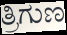
ತ್ರಿಗುಣ